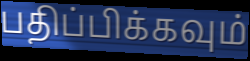
பதிப்பிக்கவும்